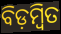
ବିଡ଼ମ୍ବିତ